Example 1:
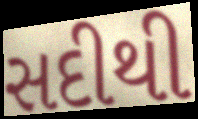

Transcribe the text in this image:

સદીથી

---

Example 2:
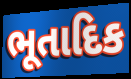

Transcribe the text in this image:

ભૂતાદિક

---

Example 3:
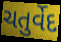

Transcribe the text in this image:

ચતુર્વેદ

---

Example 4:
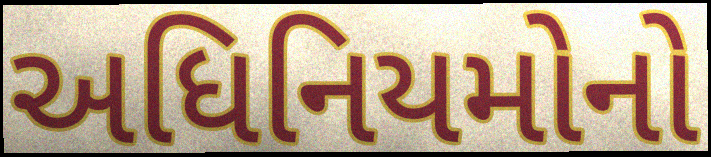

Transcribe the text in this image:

અધિનિયમોનો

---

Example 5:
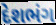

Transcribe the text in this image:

દેશભંગ